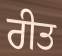
ਰੀਤ